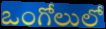
ఒంగోలులో